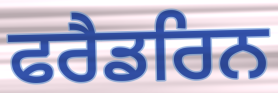
ਫਰੈਡਰਿਨ